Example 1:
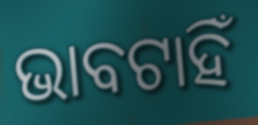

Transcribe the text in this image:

ଭାବଟାହିଁ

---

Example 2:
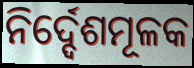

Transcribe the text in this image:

ନିର୍ଦ୍ଦେଶମୂଳକ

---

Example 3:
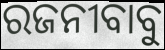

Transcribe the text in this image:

ରଜନୀବାବୁ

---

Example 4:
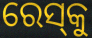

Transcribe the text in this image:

ରେସ୍‌କୁ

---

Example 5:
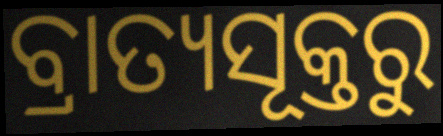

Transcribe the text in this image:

ବ୍ରାତ୍ୟସୂକ୍ତରୁ